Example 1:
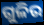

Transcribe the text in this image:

ଗୁଳିର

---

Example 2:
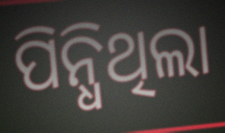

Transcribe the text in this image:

ପିନ୍ଧିଥିଲା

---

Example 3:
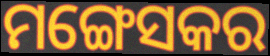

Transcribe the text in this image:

ମଙ୍ଗେସକର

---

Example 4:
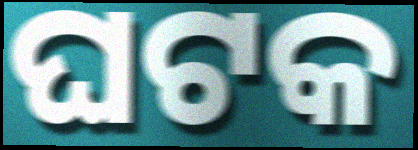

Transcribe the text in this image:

ଘଟକ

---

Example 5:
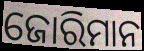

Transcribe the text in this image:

ଜୋରିମାନ